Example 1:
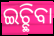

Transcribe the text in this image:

ଇଚ୍ଛିବା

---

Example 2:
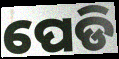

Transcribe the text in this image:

ପେଡି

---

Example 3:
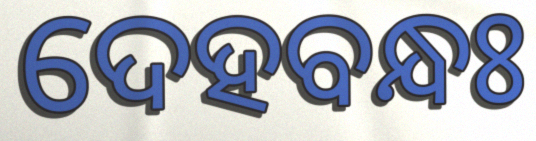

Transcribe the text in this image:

ଦେହବନ୍ଧଃ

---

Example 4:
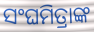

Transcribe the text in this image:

ସଂଘମିତ୍ରାଙ୍କ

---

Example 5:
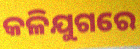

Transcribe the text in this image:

କଳିଯୁଗରେ